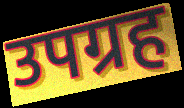
उपग्रह